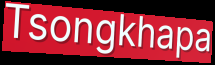
Tsongkhapa